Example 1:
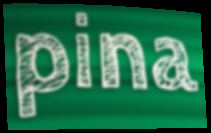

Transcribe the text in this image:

pina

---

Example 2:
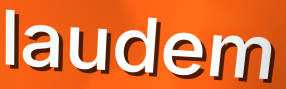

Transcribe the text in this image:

laudem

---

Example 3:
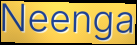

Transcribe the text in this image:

Neenga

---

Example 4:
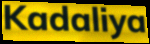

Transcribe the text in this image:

Kadaliya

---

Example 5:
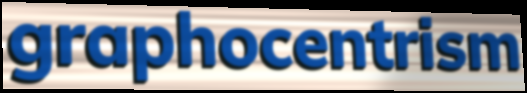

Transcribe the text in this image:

graphocentrism